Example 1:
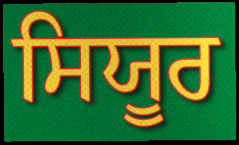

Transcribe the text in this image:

ਸਿਯੂਰ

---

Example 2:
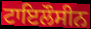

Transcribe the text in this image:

ਟਾਇਲੌਸੀਨ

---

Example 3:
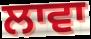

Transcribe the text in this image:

ਲਾਵਾ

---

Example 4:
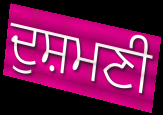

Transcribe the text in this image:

ਦੁਸ਼ਮਣੀ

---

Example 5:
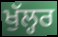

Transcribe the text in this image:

ਖੁੱਲ੍ਹਰ